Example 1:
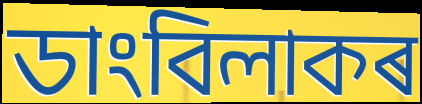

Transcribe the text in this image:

ডাংবিলাকৰ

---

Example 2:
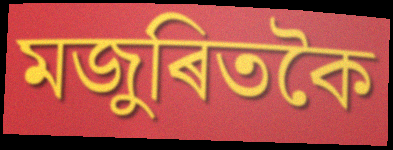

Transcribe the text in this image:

মজুৰিতকৈ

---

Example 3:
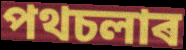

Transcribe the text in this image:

পথচলাৰ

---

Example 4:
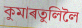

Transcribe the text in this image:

কুমাৰতুলিলৈ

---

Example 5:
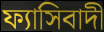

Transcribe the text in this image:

ফ্যাসিবাদী